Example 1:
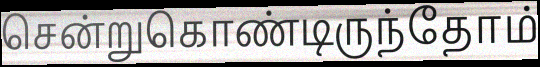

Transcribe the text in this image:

சென்றுகொண்டிருந்தோம்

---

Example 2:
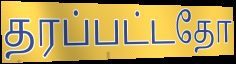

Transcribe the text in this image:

தரப்பட்டதோ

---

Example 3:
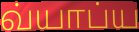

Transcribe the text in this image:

வ்யாப்ய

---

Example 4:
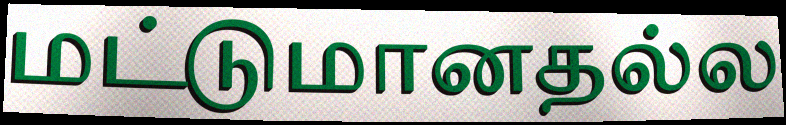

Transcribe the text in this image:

மட்டுமானதல்ல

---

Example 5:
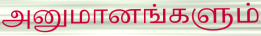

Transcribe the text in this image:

அனுமானங்களும்